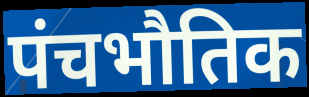
पंचभौतिक